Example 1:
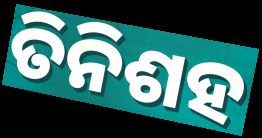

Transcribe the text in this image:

ତିନିଶହ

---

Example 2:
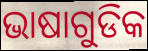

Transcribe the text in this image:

ଭାଷାଗୁଡିକ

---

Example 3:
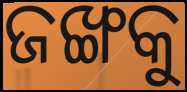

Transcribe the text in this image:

ଜଙ୍ଖକୁ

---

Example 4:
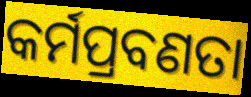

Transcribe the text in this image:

କର୍ମପ୍ରବଣତା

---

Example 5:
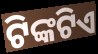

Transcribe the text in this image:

ଟିଙ୍କଟିଏ